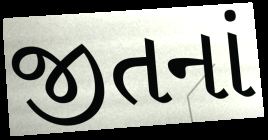
જીતનાં